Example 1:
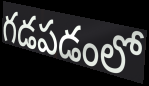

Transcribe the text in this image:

గడపడంలో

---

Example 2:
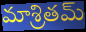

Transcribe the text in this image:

మాశ్రితమ్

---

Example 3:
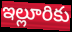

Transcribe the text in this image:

ఇల్లూరికు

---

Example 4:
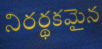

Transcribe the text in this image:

నిరర్థకమైన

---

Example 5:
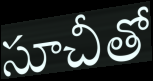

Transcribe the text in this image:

సూచీతో